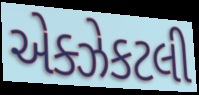
એક્ઝેકટલી